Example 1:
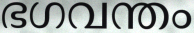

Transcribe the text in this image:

ഭഗവന്തം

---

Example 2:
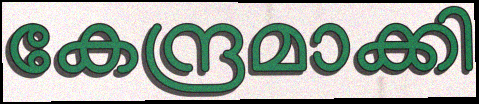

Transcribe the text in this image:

കേന്ദ്രമാക്കി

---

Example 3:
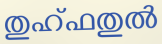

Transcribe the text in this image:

തുഹ്ഫതുൽ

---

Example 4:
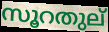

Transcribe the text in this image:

സൂറതുല്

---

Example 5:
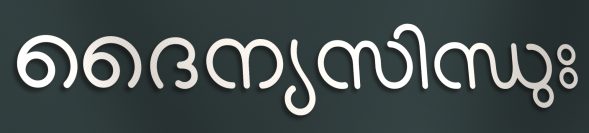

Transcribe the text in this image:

ദൈന്യസിന്ധുഃ